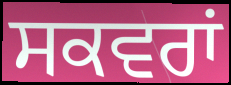
ਸਕਵਰਾਂ